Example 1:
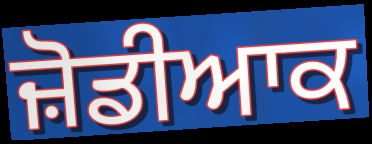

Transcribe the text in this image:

ਜ਼ੋਡੀਆਕ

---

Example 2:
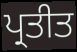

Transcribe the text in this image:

ਪ੍ਰਤੀਤ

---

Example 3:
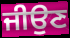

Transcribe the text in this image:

ਜੀਉਣ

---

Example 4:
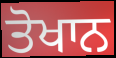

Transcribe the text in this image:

ਤੋਖਾਨ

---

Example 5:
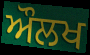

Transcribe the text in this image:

ਔਲਖ